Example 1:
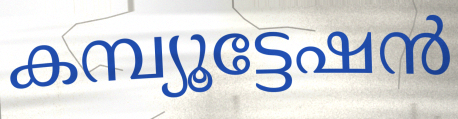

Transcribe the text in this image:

കമ്പ്യൂട്ടേഷൻ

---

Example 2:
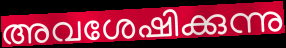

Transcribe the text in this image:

അവശേഷിക്കുന്നു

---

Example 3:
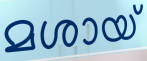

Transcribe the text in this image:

മശായ്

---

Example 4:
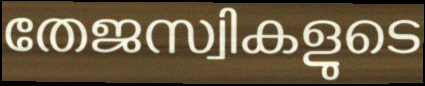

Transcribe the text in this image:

തേജസ്വികളുടെ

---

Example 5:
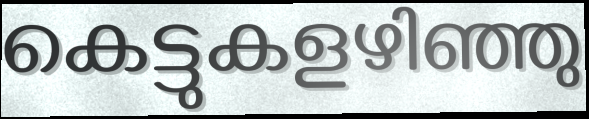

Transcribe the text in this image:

കെട്ടുകളഴിഞ്ഞു